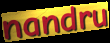
nandru